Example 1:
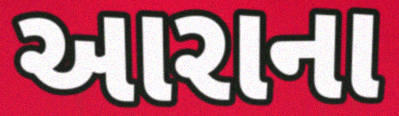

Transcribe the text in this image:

આરાના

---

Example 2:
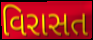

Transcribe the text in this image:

વિરાસત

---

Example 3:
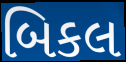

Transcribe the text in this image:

બિકલ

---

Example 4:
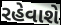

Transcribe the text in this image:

રહેવાશે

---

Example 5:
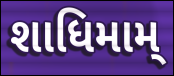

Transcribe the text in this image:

શાધિમામ્